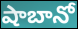
షాబానో